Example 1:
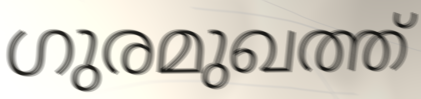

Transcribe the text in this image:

ഗുരമുഖത്ത്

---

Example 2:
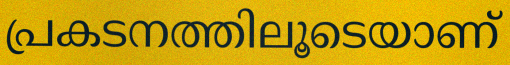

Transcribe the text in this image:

പ്രകടനത്തിലൂടെയാണ്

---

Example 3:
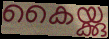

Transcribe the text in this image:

കൈയ്ക്കു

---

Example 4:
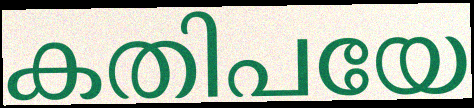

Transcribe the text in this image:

കതിപയേ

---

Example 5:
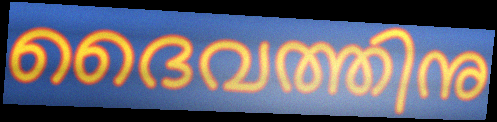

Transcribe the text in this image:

ദൈവത്തിനു